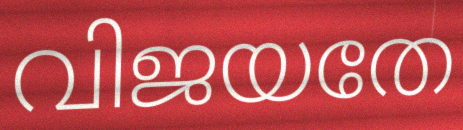
വിജയതേ